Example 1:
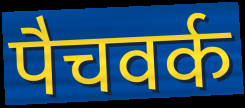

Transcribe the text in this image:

पैचवर्क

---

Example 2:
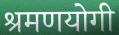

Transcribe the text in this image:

श्रमणयोगी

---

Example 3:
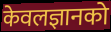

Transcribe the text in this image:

केवलज्ञानको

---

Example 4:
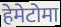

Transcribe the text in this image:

हेमेटोमा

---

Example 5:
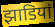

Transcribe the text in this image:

झाडियां